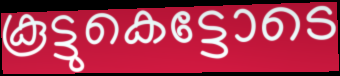
കൂട്ടുകെട്ടോടെ